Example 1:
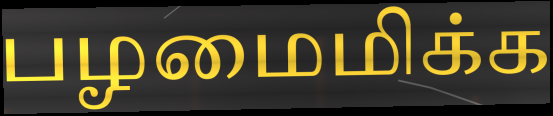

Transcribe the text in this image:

பழமைமிக்க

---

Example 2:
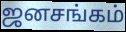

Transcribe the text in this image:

ஜனசங்கம்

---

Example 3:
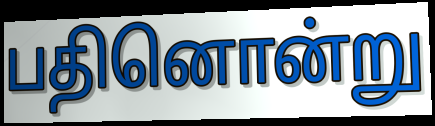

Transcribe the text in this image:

பதினொன்று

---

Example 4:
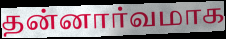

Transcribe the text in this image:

தன்னார்வமாக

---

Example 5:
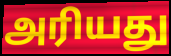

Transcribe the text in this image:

அரியது